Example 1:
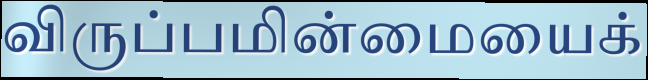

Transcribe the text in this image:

விருப்பமின்மையைக்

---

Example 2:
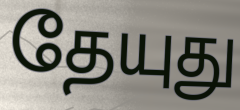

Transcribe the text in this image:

தேயுது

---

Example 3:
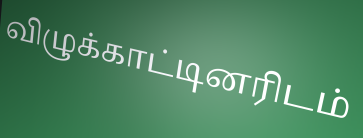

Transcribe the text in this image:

விழுக்காட்டினரிடம்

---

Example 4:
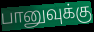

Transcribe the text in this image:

பானுவுக்கு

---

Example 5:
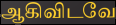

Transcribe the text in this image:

ஆகிவிடவே